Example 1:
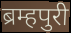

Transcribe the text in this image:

ब्रम्हपुरी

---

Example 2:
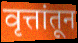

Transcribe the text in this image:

वृत्तांतून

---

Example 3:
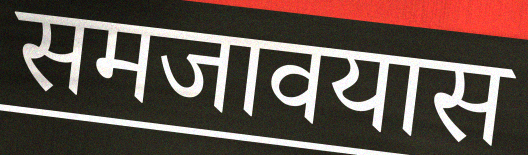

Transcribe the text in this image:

समजावयास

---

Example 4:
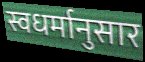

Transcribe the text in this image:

स्वधर्मानुसार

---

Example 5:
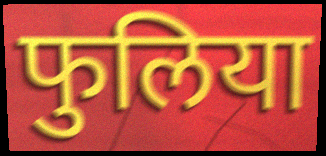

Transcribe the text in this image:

फुलिया